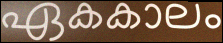
ഏകകാലം